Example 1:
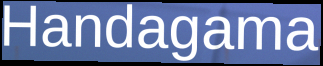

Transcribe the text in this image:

Handagama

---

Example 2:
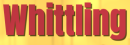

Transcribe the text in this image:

Whittling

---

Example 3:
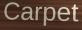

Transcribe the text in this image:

Carpet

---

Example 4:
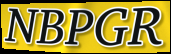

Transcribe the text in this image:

NBPGR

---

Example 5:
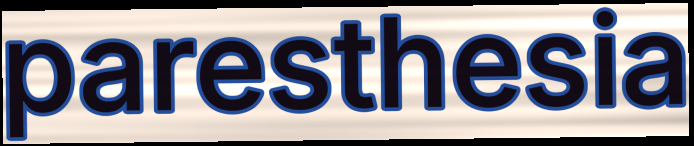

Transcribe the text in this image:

paresthesia